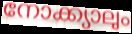
നോക്ക്യാലും